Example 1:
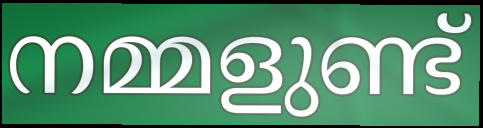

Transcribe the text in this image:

നമ്മളുണ്ട്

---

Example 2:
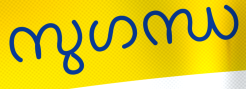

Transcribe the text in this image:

സുഗന്ധ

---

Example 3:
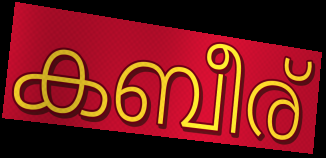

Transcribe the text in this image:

കബീര്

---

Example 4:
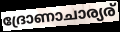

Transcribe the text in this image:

ദ്രോണാചാര്യര്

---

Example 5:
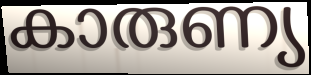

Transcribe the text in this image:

കാരുണ്യ